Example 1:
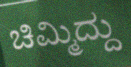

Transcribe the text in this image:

ಚಿಮ್ಮಿದ್ದು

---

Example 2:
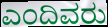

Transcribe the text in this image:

ಎಂದಿವರು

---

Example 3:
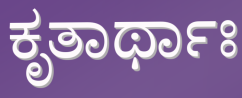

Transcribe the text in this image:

ಕೃತಾರ್ಥಾಃ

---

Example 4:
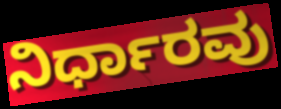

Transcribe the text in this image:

ನಿರ್ಧಾರವು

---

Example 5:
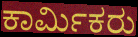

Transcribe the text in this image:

ಕಾರ್ಮಿಕರು